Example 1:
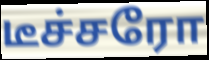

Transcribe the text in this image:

டீச்சரோ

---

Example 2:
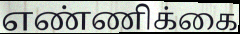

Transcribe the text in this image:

எண்ணிக்கை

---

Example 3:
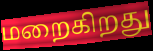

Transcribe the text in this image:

மறைகிறது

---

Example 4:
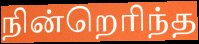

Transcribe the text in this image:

நின்றெரிந்த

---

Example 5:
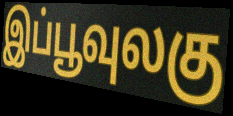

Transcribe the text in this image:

இப்பூவுலகு